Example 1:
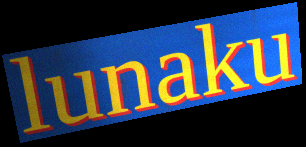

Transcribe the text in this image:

lunaku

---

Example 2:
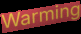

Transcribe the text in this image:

Warming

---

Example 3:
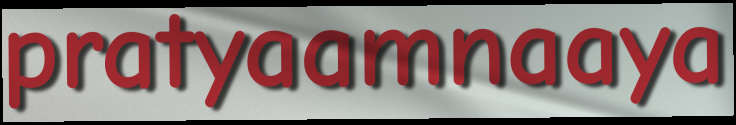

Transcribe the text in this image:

pratyaamnaaya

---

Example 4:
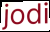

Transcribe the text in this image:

jodi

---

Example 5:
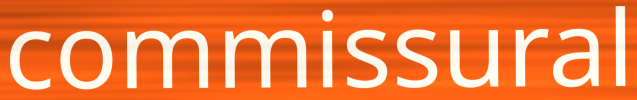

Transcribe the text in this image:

commissural